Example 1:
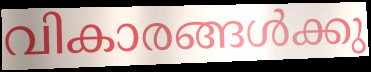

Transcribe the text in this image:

വികാരങ്ങൾക്കു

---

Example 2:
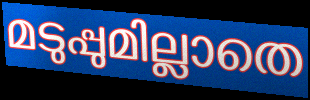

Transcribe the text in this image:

മടുപ്പുമില്ലാതെ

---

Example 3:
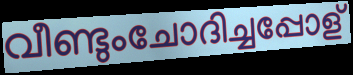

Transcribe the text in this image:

വീണ്ടുംചോദിച്ചപ്പോള്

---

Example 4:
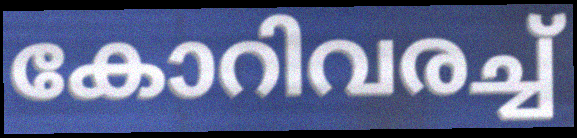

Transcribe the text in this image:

കോറിവരച്ച്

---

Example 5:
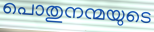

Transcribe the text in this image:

പൊതുനന്മയുടെ